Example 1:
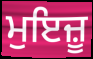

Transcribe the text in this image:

ਮੁਇਜ਼ੂ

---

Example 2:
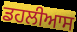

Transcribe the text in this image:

ਡਹਲੀਆਸ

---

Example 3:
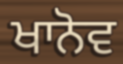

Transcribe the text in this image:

ਖਾਨੋਵ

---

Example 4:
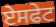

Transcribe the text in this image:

ਏਸਫੇਟ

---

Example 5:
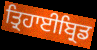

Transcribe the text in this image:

ਤ੍ਰਿਹਾਈਬ੍ਰਿਡ